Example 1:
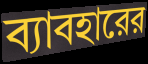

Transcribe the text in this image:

ব্যাবহারের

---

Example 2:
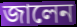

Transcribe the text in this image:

জালেন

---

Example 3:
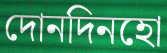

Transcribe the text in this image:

দোনদিনহো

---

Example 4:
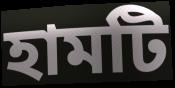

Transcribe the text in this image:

হামটি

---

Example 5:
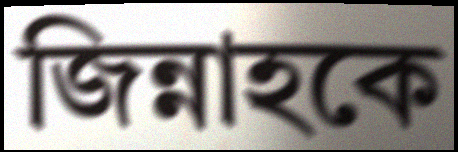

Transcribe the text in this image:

জিন্নাহকে